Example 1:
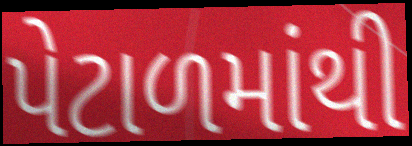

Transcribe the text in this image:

પેટાળમાંથી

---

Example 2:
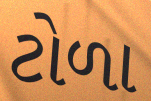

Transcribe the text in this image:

ટોળા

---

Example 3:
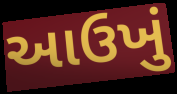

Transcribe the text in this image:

આઉખું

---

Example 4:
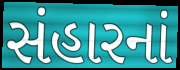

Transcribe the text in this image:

સંહારનાં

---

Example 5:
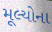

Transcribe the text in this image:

મૂલ્‍યોના